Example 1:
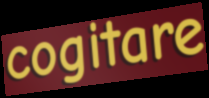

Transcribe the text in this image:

cogitare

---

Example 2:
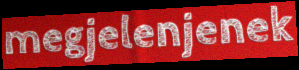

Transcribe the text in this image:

megjelenjenek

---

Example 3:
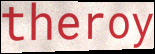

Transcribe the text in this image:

theroy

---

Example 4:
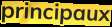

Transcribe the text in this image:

principaux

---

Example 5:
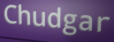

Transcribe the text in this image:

Chudgar